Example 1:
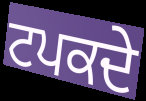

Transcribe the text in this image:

ਟਪਕਦੇ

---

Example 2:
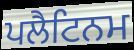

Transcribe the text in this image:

ਪਲੈਟਿਨਮ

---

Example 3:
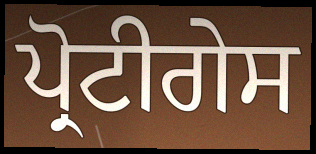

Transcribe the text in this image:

ਪ੍ਰੋਟੀਗੇਸ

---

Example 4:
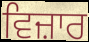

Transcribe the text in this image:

ਵਿਜ਼ਾਰ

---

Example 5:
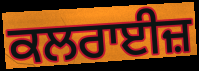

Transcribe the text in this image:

ਕਲਰਾਈਜ਼